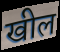
खील